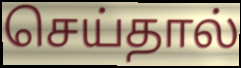
செய்தால்